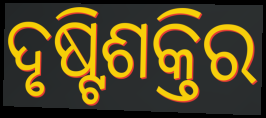
ଦୃଷ୍ଟିଶକ୍ତିର